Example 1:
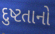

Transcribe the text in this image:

દુષ્ટતાનો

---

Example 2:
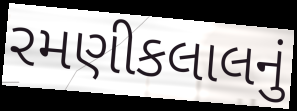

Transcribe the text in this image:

રમણીકલાલનું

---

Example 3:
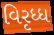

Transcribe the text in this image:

વિરૃધ્ધ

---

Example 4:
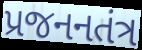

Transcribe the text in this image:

પ્રજનનતંત્ર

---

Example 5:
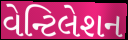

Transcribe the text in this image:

વેન્ટિલેશન